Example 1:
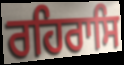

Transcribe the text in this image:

ਰਹਿਰਾਸਿ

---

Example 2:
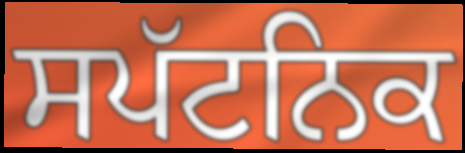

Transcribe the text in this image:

ਸਪੱਟਨਿਕ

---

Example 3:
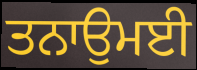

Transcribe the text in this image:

ਤਨਾਉਮਈ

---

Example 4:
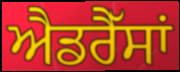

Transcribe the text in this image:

ਐਡਰੈੱਸਾਂ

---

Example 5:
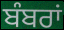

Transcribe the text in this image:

ਬੰਬਰਾਂ